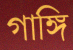
গাঙ্গি